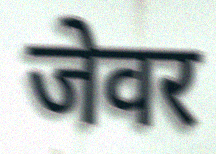
जेवर